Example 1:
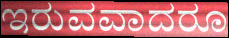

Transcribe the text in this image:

ಇರುವವಾದರೂ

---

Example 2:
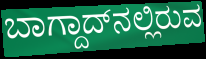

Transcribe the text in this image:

ಬಾಗ್ದಾದ್‌ನಲ್ಲಿರುವ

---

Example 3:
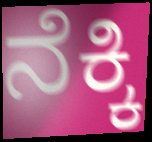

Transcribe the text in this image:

ನೆಕ್ಕಿ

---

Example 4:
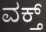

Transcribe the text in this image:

ವಕ್ತ್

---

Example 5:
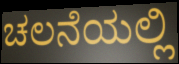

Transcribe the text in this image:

ಚಲನೆಯಲ್ಲಿ